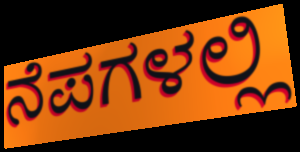
ನೆಪಗಳಲ್ಲಿ